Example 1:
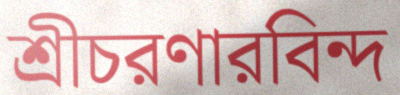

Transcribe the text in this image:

শ্রীচরণারবিন্দ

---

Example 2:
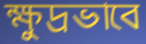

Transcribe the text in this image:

ক্ষুদ্রভাবে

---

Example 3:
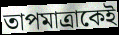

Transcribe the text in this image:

তাপমাত্রাকেই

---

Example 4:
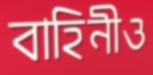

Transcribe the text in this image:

বাহিনীও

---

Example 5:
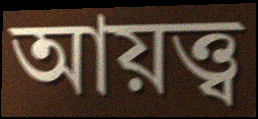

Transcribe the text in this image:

আয়ত্ত্ব